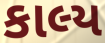
કાલ્ય